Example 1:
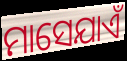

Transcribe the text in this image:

ମାସେଯାଏଁ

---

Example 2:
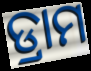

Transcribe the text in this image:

ଡ୍ରାମ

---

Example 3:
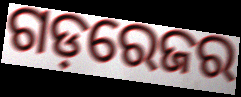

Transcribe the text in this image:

ଗଡ଼ରେଜର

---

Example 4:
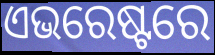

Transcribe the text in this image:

ଏଭରେଷ୍ଟରେ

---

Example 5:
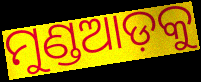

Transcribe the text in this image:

ମୁଣ୍ଡଆଡ଼କୁ